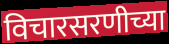
विचारसरणीच्या